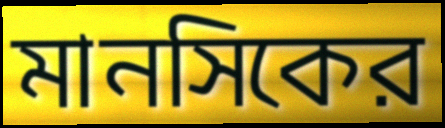
মানসিকের